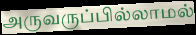
அருவருப்பில்லாமல்